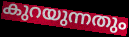
കുറയുന്നതും